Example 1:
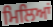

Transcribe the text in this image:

ਮਿਲਿਆਂ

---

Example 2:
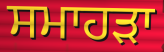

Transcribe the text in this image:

ਸਮਾਹੜਾ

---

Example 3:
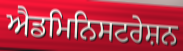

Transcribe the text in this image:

ਐਡਮਿਨਿਸਟਰੇਸ਼ਨ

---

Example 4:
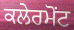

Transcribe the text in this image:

ਕਲੇਰਮੋਂਟ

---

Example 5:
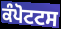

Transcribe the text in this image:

ਕੰਪੋਟਟਸ